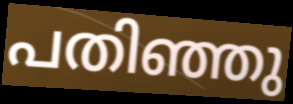
പതിഞ്ഞു